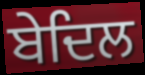
ਬੇਦਿਲ